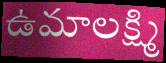
ఉమాలక్ష్మి